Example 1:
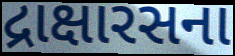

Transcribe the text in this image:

દ્રાક્ષારસના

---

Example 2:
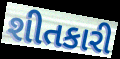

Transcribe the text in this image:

શીતકારી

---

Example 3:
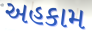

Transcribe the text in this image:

અહકામ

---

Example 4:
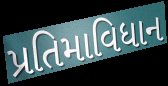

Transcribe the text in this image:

પ્રતિમાવિધાન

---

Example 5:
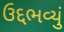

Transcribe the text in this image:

ઉદ્દભવ્યું